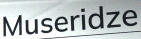
Museridze